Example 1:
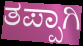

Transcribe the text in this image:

ತಪ್ಪಾಗಿ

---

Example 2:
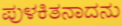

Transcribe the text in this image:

ಪುಳಕಿತನಾದನು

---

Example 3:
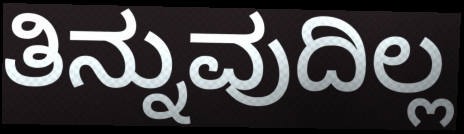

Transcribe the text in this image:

ತಿನ್ನುವುದಿಲ್ಲ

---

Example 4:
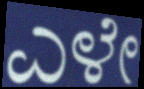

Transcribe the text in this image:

ಎಳೇ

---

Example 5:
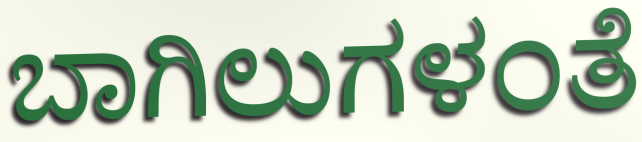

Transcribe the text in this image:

ಬಾಗಿಲುಗಳಂತೆ